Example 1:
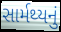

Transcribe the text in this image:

સાર્મથ્યનું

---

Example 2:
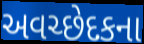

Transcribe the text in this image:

અવચ્છેદકના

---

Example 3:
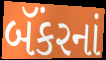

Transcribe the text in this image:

બૅંકરનાં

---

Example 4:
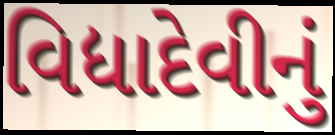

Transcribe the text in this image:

વિદ્યાદેવીનું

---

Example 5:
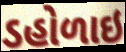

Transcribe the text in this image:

ડહોળાઇ